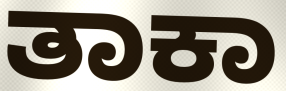
ತಾಕಾ